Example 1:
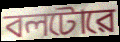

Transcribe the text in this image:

বলটোৱে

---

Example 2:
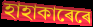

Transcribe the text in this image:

হাহাকাৰেৰে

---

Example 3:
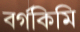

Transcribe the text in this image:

বৰ্গকিমি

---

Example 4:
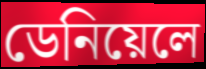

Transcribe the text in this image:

ডেনিয়েলে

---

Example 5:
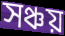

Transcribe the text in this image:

সঞ্চয়